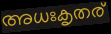
അധഃകൃതര്